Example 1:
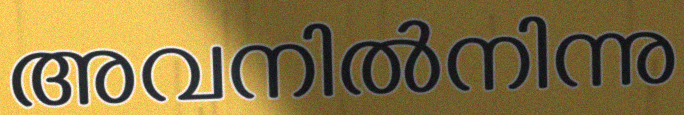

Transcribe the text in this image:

അവനിൽനിന്നു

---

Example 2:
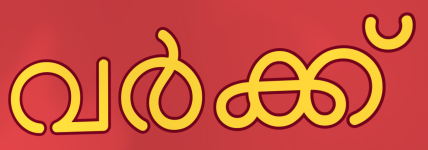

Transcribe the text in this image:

വർക്ക്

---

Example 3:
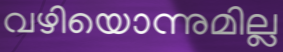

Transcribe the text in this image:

വഴിയൊന്നുമില്ല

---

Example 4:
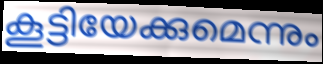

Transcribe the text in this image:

കൂട്ടിയേക്കുമെന്നും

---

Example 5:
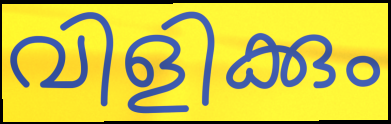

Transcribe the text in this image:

വിളിക്കും